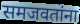
समजवतांना